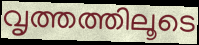
വൃത്തത്തിലൂടെ